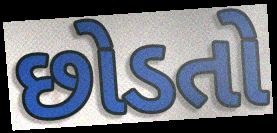
છોડતો